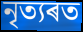
নৃত্যৰত